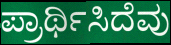
ಪ್ರಾರ್ಥಿಸಿದೆವು